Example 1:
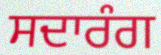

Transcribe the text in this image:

ਸਦਾਰੰਗ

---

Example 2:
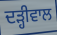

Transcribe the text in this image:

ਦੜ੍ਹੀਵਾਲ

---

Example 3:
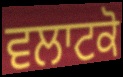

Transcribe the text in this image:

ਵਲਾਟਕੋ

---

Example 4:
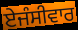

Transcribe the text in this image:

ਏਜੰਸੀਵਾਰ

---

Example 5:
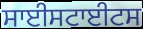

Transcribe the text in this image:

ਸਾਈਸਟਾਈਟਸ